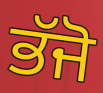
ਭੱਜੋ